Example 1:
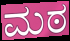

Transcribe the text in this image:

ಮಠ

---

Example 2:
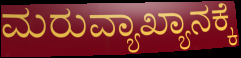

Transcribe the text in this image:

ಮರುವ್ಯಾಖ್ಯಾನಕ್ಕೆ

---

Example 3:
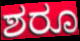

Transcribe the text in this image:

ಶರೂ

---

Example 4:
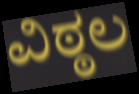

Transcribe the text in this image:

ವಿಠ್ಠಲ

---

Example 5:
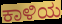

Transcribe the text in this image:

ಕಾಳಿಯ